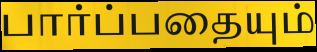
பார்ப்பதையும்